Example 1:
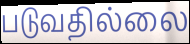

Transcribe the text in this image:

படுவதில்லை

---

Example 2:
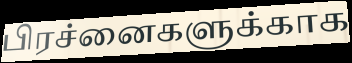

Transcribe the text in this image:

பிரச்னைகளுக்காக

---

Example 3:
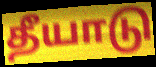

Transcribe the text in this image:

தீயாடு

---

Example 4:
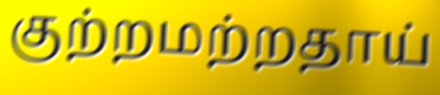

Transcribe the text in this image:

குற்றமற்றதாய்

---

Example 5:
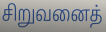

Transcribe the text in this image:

சிறுவனைத்